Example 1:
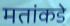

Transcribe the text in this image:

मतांकडे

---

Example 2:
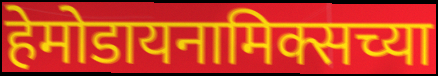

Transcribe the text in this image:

हेमोडायनामिक्सच्या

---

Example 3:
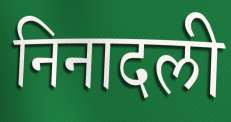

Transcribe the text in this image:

निनादली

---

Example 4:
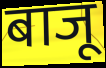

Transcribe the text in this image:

बाजू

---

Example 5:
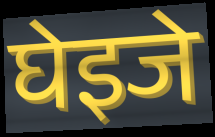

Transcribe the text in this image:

घेइजे